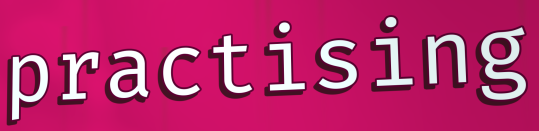
practising